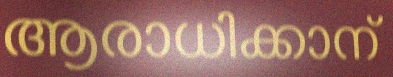
ആരാധിക്കാന്